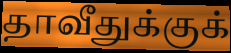
தாவீதுக்குக்